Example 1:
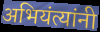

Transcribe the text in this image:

अभियंत्यांनी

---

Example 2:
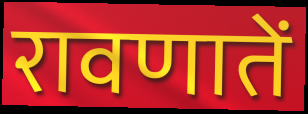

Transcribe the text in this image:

रावणातें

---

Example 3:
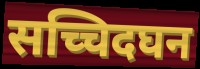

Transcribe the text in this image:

सच्चिदघन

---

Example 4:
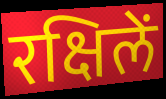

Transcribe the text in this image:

रक्षिलें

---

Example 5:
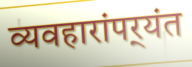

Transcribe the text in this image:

व्यवहारांपर्यंत